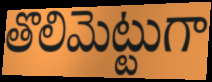
తొలిమెట్టుగా